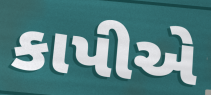
કાપીએ